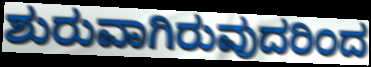
ಶುರುವಾಗಿರುವುದರಿಂದ